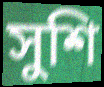
সুশি